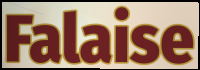
Falaise